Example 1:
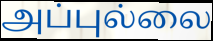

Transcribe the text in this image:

அப்புல்லை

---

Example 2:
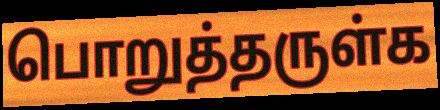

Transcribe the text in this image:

பொறுத்தருள்க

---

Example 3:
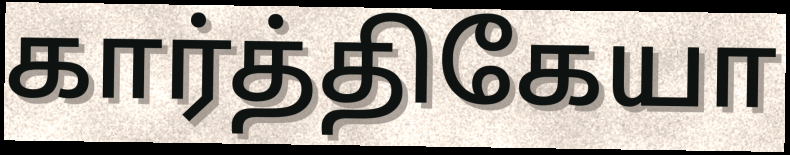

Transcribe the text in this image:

கார்த்திகேயா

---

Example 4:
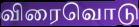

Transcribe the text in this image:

விரைவொடு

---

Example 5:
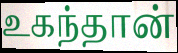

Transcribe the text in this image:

உகந்தான்